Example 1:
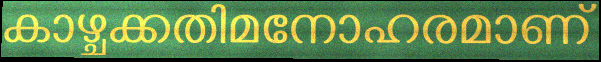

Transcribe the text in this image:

കാഴ്ചക്കതിമനോഹരമാണ്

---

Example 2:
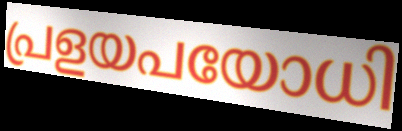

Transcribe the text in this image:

പ്രളയപയോധി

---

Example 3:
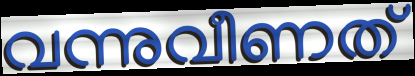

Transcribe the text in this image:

വന്നുവീണത്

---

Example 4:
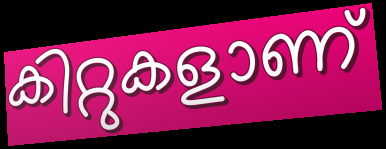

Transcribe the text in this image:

കിറ്റുകളാണ്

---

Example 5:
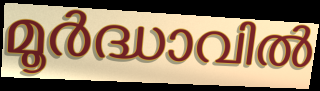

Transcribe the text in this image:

മൂർദ്ധാവിൽ